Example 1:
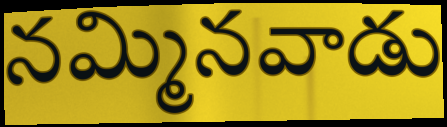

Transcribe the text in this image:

నమ్మినవాడు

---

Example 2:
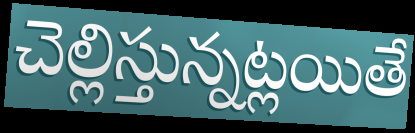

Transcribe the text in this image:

చెల్లిస్తున్నట్లయితే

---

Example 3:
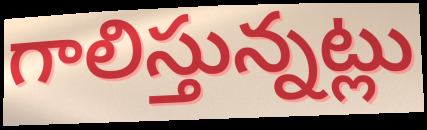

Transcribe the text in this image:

గాలిస్తున్నట్లు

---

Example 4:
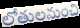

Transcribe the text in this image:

లోతులనుంచి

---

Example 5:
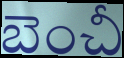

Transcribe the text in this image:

బెంచీ